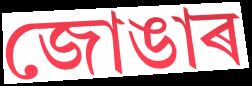
জোঙাৰ